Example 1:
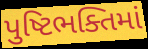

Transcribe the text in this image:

પુષ્ટિભક્તિમાં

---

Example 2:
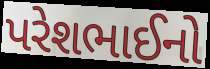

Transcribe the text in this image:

પરેશભાઈનો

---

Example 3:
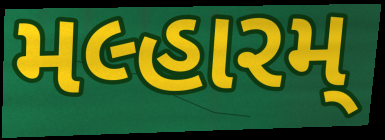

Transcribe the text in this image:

મલ્હારમ્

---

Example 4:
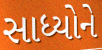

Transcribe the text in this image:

સાધ્યોને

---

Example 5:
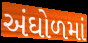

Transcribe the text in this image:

અંઘોળમાં